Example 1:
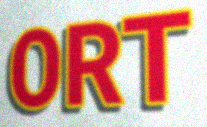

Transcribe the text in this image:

ORT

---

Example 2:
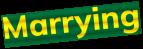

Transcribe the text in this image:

Marrying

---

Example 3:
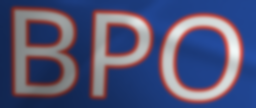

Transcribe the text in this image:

BPO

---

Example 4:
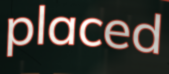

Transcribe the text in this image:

placed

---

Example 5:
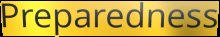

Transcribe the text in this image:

Preparedness